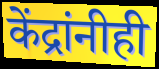
केंद्रांनीही